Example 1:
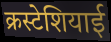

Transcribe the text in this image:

क्रस्टेशियाई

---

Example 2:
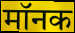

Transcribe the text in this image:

मॉनक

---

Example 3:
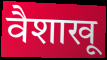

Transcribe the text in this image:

वैशाखू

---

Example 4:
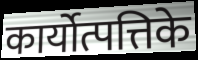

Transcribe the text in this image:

कार्योत्पत्तिके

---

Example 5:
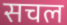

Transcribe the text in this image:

सचल